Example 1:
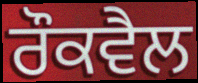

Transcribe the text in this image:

ਰੌਕਵੈਲ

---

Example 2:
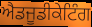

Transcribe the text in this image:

ਐਡਜੂਡੀਕੇਟਿੰਗ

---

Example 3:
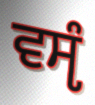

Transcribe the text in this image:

ਵਸੵੰ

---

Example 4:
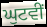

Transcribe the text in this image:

ਘੁਟਵੀਂ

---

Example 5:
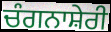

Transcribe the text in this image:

ਚੰਗਨਾਸ਼ੇਰੀ